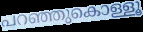
പറഞ്ഞുകൊള്ളൂ